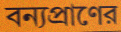
বন্যপ্রাণের